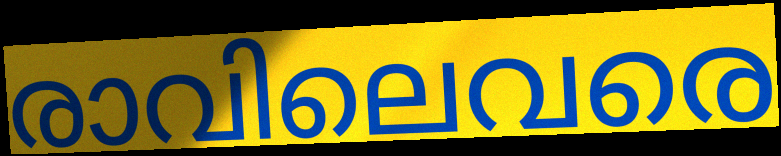
രാവിലെവരെ